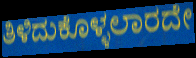
ತಿಳಿದುಕೊಳ್ಳಲಾರದೇ